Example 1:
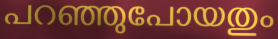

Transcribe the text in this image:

പറഞ്ഞുപോയതും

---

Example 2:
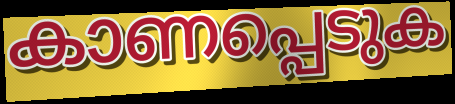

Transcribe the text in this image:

കാണപ്പെടുക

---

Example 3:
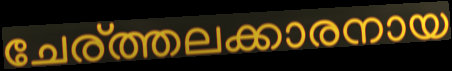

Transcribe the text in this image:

ചേര്ത്തലക്കാരനായ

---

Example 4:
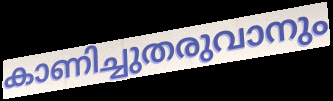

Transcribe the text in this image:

കാണിച്ചുതരുവാനും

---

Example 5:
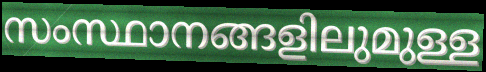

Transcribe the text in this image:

സംസ്ഥാനങ്ങളിലുമുള്ള